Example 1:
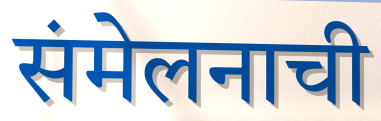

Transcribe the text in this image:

संमेलनाची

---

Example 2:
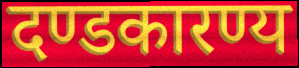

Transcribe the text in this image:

दण्डकारण्य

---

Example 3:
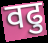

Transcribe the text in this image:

वढु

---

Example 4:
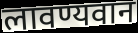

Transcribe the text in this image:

लावण्यवान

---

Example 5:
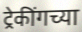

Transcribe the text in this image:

ट्रेकींगच्या